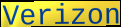
Verizon